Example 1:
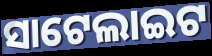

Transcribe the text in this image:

ସାଟେଲାଇଟ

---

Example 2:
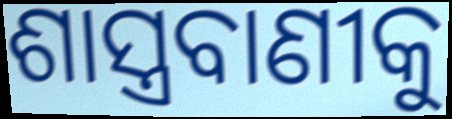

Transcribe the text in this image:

ଶାସ୍ତ୍ରବାଣୀକୁ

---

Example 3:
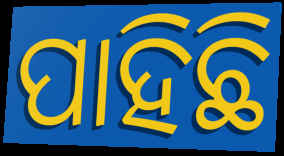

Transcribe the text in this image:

ପାହିଛି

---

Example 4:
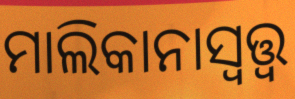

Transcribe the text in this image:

ମାଲିକାନାସ୍ୱତ୍ତ୍ୱ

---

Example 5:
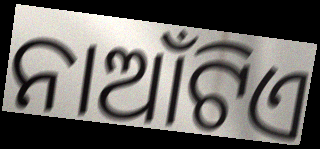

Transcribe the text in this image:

ନାଆଁଟିଏ